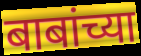
बाबांच्या